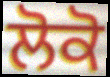
ਲੋਕੋ